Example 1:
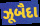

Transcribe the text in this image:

ઝૂબૈદા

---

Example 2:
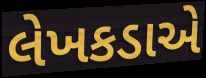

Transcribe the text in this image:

લેખકડાએ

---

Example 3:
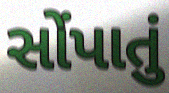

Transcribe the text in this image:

સોંપાતું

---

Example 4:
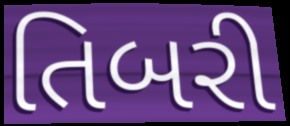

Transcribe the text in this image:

તિબરી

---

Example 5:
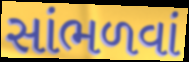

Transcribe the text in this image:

સાંભળવાં